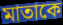
মাতাকে